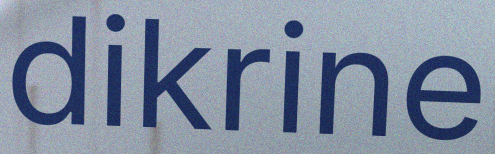
dikrine